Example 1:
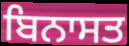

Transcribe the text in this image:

ਬਿਨਾਸਤ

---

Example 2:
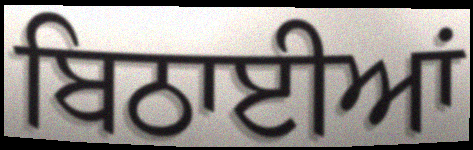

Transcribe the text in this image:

ਬਿਠਾਈਆਂ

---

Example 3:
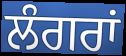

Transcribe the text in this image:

ਲੰਗਰਾਂ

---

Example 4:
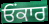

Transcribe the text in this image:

ਓਂਕਾਰ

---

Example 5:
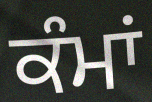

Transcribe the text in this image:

ਕੰਮਾਂ